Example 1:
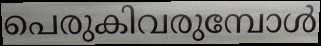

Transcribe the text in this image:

പെരുകിവരുമ്പോൾ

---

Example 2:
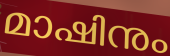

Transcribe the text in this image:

മാഷിനും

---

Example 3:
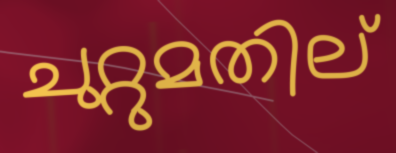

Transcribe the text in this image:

ചുറ്റുമതില്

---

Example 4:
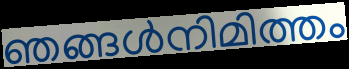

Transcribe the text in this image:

ഞങ്ങൾനിമിത്തം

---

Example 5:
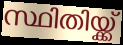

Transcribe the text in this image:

സ്ഥിതിയ്ക്ക്